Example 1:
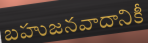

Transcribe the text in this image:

బహుజనవాదానికీ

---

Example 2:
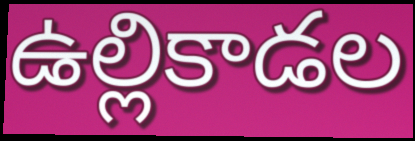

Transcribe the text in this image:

ఉల్లికాడల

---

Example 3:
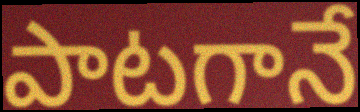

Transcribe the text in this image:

పాటగానే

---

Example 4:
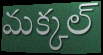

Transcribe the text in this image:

మక్కల్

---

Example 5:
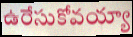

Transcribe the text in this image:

ఉరేసుకోవయ్యా